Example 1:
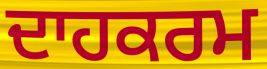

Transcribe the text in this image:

ਦਾਹਕਰਮ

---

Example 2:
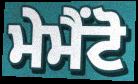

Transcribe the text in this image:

ਮੇਮੈਂਟੋ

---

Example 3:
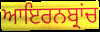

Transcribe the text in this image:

ਆਇਰਨਬ੍ਰਾਂਚ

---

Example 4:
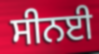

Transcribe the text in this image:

ਸੀਨਈ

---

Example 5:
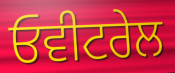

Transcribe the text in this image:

ਓਵੀਟਰੇਲ